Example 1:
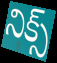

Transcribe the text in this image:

నిక్స్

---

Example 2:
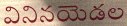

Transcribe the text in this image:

వినినయెడల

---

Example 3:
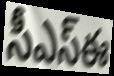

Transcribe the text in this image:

సీఎస్ఈ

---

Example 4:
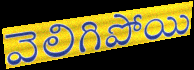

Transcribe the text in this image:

వెలిగిపోయి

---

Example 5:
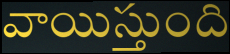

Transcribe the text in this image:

వాయిస్తుంది